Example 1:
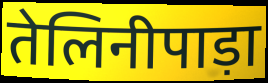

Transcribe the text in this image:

तेलिनीपाड़ा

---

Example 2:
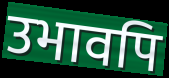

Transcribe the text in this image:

उभावपि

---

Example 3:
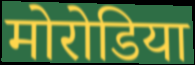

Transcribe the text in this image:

मोरोडिया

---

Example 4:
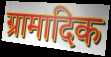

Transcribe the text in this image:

ग्रामादिक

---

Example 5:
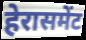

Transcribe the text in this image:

हेरासमेंट